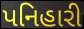
પનિહારી